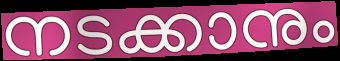
നടക്കാനും